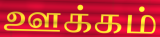
ஊக்கம்